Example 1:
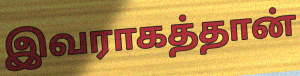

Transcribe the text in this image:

இவராகத்தான்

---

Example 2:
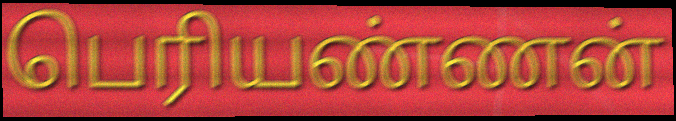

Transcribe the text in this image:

பெரியண்ணன்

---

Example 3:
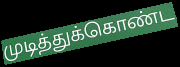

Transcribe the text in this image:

முடித்துக்கொண்ட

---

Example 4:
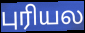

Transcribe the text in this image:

புரியல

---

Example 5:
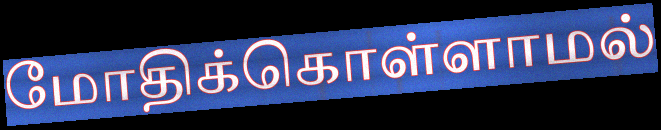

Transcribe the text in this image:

மோதிக்கொள்ளாமல்